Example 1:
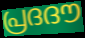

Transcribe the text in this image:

പ്രദദൗ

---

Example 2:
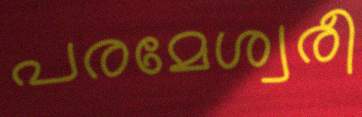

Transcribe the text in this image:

പരമേശ്വരീ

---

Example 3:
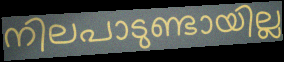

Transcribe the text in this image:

നിലപാടുണ്ടായില്ല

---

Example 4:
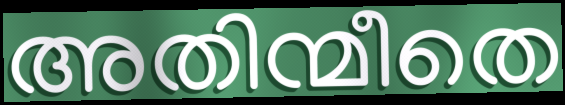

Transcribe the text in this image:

അതിന്മീതെ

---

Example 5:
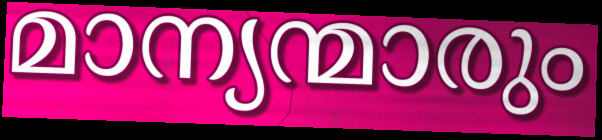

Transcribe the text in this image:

മാന്യന്മാരും